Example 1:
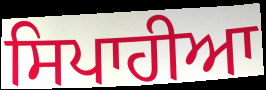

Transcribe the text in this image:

ਸਿਪਾਹੀਆ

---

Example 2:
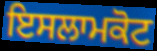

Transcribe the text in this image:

ਇਸਲਾਮਕੋਟ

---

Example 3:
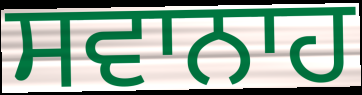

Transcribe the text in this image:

ਸਵਾਨਾਹ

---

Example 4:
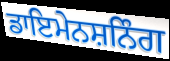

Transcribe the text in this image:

ਡਾਇਮੇਨਸ਼ਨਿੰਗ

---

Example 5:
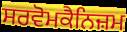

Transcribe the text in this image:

ਸਰਵੋਮਕੈਨਿਜ਼ਮ